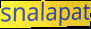
snalapat